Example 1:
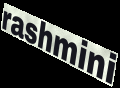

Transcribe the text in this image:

rashmini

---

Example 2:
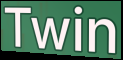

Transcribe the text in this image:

Twin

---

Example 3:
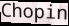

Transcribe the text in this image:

Chopin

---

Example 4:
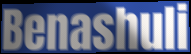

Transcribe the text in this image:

Benashuli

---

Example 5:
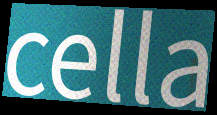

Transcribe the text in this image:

cella